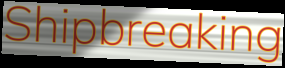
Shipbreaking